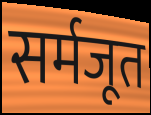
सर्मजूत